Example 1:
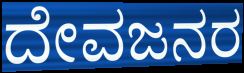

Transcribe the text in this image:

ದೇವಜನರ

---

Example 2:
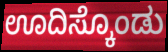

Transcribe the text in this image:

ಊದಿಸ್ಕೊಂಡು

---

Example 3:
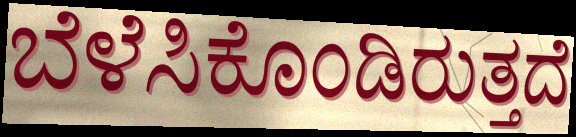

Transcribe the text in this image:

ಬೆಳೆಸಿಕೊಂಡಿರುತ್ತದೆ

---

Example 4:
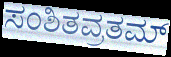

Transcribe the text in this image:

ಸಂಶಿತವ್ರತಮ್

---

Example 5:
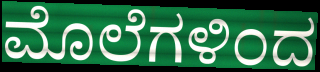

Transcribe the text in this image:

ಮೊಲೆಗಳಿಂದ